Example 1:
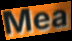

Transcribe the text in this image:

Mea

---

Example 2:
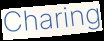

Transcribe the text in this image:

Charing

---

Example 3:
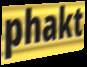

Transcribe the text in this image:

phakt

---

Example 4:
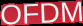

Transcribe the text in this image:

OFDM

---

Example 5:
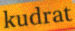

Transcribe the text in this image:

kudrat